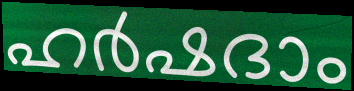
ഹർഷദാം